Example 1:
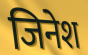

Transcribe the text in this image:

जिनेश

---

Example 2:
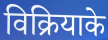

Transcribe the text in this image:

विक्रियाके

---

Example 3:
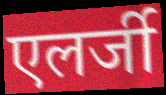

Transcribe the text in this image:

एलर्जी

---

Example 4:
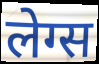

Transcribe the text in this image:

लेग्स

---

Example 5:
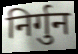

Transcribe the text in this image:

निर्गुन